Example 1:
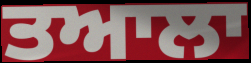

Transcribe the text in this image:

ਤਆਲਾ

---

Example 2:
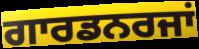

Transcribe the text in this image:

ਗਾਰਡਨਰਜਾਂ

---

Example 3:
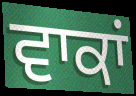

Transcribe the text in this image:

ਵਾਕਾਂ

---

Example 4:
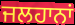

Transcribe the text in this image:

ਜਲਹਾਨਾਂ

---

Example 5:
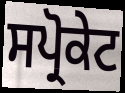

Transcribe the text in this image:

ਸਪ੍ਰੋਕੇਟ